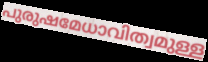
പുരുഷമേധാവിത്വമുള്ള